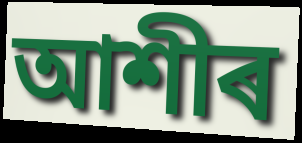
আশীৰ